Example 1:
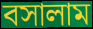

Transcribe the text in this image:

বসালাম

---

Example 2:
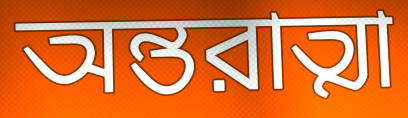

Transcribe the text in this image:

অন্তরাত্মা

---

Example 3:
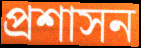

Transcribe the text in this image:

প্রশাসন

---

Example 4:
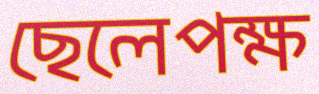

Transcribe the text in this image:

ছেলেপক্ষ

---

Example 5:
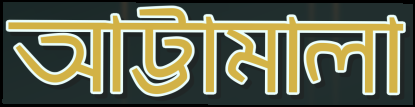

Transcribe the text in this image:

আট্টামালা